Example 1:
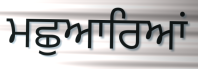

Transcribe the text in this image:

ਮਛੁਆਰਿਆਂ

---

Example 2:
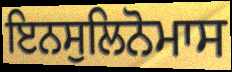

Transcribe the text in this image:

ਇਨਸੁਲਿਨੋਮਾਸ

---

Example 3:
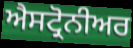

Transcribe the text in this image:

ਐਸਟ੍ਰੋਨੀਅਰ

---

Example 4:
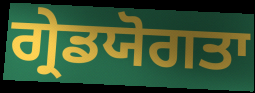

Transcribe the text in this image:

ਗ੍ਰੇਡਯੋਗਤਾ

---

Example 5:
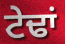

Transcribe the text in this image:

ਟੇਢਾਂ